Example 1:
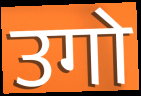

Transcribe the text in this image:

उगो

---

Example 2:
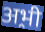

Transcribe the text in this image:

अ्रभी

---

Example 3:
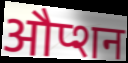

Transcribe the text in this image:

औप्शन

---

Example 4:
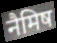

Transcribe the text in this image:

नैमिष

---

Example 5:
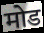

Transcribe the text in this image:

मोड